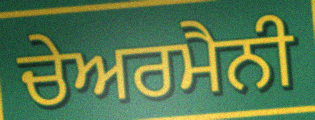
ਚੇਅਰਮੈਨੀ